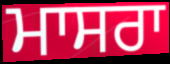
ਮਾਸਰਾ